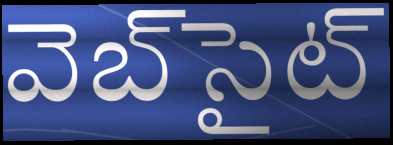
వెబ్‌సైట్